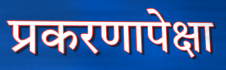
प्रकरणापेक्षा